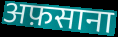
अफ़साना